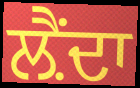
ਲ਼ੈਂਦਾ